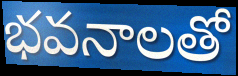
భవనాలతో